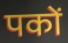
पकों